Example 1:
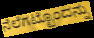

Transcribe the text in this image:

ನೆಲೆಗಟ್ಟೊಂದನ್ನು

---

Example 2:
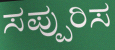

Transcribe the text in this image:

ಸಪ್ಪುರಿಸ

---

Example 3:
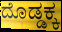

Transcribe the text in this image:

ದೊಡ್ಡಕ್ಕ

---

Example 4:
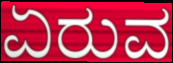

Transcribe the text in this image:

ಏರುವ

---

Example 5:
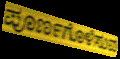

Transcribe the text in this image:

ಪೂರ್ಣಗೊಳಿಸುವ